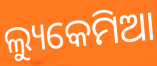
ଲ୍ୟୁକେମିଆ